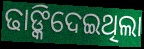
ଢାଙ୍କିଦେଇଥିଲା